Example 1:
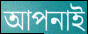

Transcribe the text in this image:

আপনাই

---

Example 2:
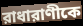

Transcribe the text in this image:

রাধারাণীকে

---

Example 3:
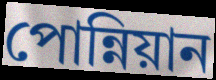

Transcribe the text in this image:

পোন্নিয়ান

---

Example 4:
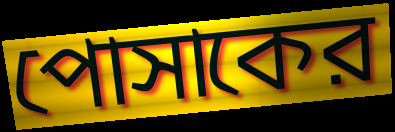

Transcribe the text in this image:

পোসাকের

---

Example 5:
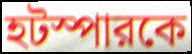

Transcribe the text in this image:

হটস্পারকে